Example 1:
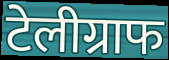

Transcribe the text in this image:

टेलीग्राफ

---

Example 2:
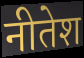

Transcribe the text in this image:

नीतेश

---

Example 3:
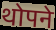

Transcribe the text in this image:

थोपने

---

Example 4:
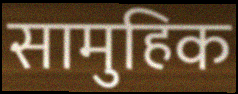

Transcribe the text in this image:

सामुहिक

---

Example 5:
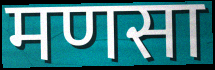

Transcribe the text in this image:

मणसा